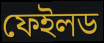
ফেইলড